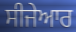
ਸੀਜੇਆਰ